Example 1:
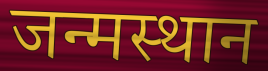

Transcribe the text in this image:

जन्मस्थान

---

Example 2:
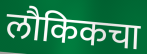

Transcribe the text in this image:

लौकिकचा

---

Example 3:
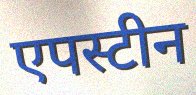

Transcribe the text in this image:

एपस्टीन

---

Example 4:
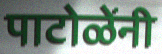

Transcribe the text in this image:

पाटोळेंनी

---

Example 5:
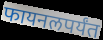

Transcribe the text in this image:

फायनलपर्यंत